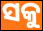
ସକୁ